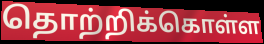
தொற்றிக்கொள்ள